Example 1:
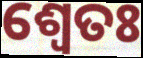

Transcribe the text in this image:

ଶ୍ଵେତଃ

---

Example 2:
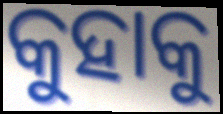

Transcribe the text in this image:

କୁହାକୁ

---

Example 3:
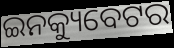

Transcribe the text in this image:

ଇନକ୍ୟୁବେଟର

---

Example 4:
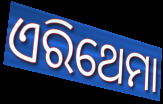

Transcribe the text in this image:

ଏରିଥେମା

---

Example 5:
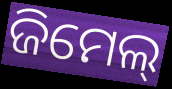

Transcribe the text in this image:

ଜିମେଲ୍